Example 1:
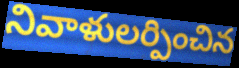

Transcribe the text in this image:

నివాళులర్పించిన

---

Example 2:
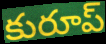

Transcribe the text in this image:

కురూప్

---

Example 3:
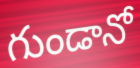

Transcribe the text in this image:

గుండానో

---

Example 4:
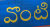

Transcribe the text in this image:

వొంటి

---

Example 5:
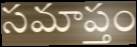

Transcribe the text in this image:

సమాప్తం